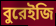
বুরেইজি